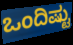
ಒಂದಿಷ್ಟು